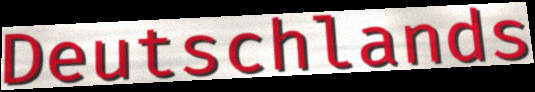
Deutschlands